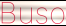
Buso